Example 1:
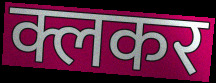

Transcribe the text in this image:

क्लकर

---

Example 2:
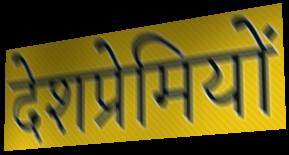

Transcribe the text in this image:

देशप्रेमियों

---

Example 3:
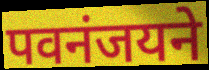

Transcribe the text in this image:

पवनंजयने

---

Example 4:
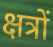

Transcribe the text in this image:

क्षत्रों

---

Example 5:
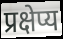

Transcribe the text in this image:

प्रक्षेप्य